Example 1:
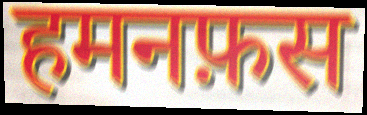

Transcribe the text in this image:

हमनफ़स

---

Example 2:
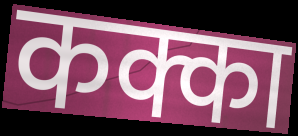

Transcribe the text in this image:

कक्का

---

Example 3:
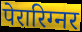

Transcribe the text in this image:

पेरारिग्नर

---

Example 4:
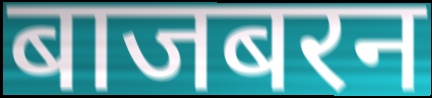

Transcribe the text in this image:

बाजबरन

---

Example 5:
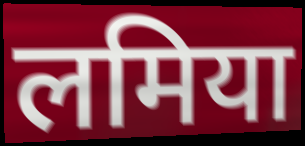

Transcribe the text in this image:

लमिया